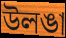
উলঙা